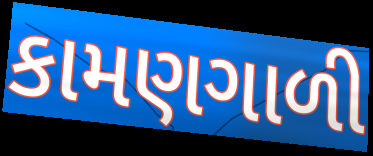
કામણગાળી